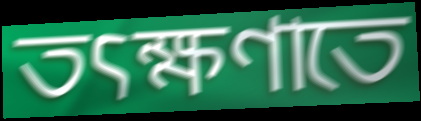
তৎক্ষণাতে